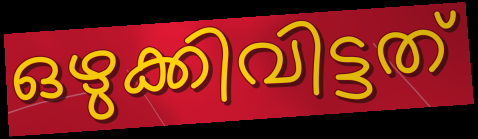
ഒഴുക്കിവിട്ടത്